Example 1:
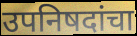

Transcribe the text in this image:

उपनिषदांचा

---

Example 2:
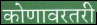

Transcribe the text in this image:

कोणावरतरी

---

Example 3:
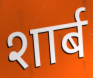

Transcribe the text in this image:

शार्ब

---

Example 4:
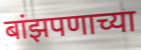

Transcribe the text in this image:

बांझपणाच्या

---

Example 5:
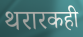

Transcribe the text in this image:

थरारकही